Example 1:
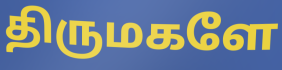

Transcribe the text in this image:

திருமகளே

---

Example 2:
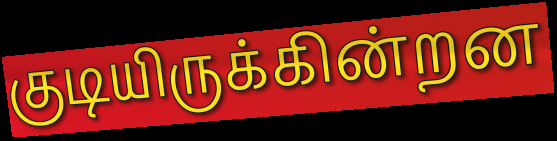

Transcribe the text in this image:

குடியிருக்கின்றன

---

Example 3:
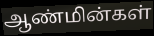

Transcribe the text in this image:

ஆண்மின்கள்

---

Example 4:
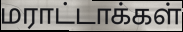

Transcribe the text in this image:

மராட்டாக்கள்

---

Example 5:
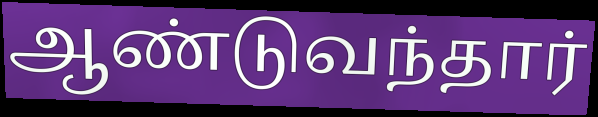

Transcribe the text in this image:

ஆண்டுவந்தார்